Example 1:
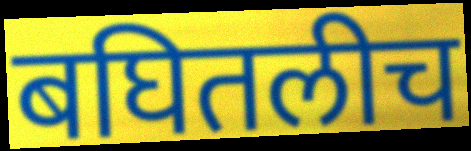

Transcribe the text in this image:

बघितलीच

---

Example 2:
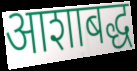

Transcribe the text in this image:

आशाबद्ध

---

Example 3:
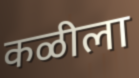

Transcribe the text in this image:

कळीला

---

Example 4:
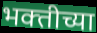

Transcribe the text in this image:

भक्‍तीच्या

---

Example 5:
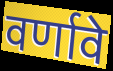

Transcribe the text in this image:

वर्णावे